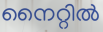
നൈറ്റിൽ